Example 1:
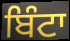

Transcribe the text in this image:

ਬਿੰਟਾ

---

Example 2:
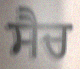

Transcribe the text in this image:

ਸੈਚ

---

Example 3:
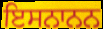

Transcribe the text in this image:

ਇਸਨਾਨਨ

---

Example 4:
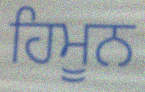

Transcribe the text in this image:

ਹਿਮੂਨ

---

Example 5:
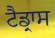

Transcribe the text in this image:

ਟੈਡ੍ਰਾਸ